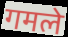
गमले